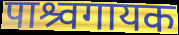
पाश्र्वगायक